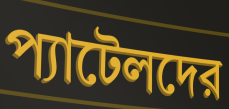
প্যাটেলদের